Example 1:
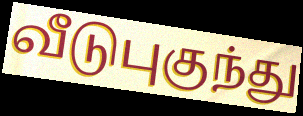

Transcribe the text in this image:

வீடுபுகுந்து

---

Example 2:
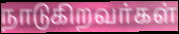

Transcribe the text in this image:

நாடுகிறவர்கள்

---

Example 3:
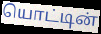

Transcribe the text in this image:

யொட்டின்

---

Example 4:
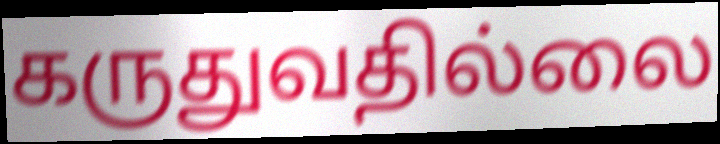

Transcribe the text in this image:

கருதுவதில்லை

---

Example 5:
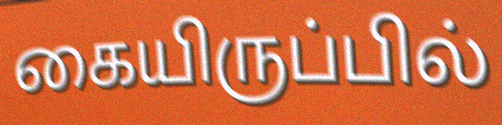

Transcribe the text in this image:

கையிருப்பில்